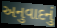
અનુવાદનું